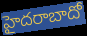
హైదరాబాదో